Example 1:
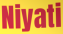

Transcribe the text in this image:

Niyati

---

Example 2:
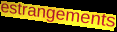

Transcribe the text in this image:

estrangements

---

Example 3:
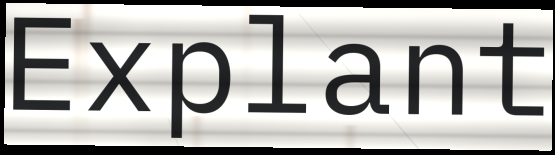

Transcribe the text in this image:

Explant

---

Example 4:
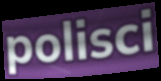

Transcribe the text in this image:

polisci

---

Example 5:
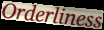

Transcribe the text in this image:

Orderliness